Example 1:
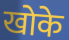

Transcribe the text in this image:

खोके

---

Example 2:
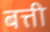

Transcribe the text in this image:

बत्ती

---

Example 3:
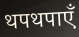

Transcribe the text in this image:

थपथपाएँ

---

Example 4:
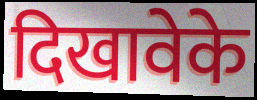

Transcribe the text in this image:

दिखावेके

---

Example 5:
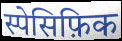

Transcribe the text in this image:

स्पेसिफ़िक